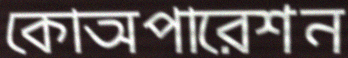
কোঅপারেশন